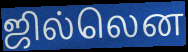
ஜில்லென